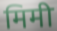
मिमी